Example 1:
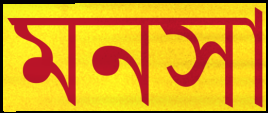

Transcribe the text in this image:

মনসা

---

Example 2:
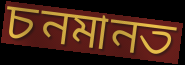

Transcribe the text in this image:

চনমানত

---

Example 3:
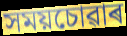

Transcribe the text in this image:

সময়চোৱাৰ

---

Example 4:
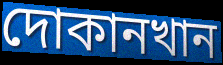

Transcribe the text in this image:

দোকানখান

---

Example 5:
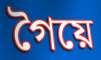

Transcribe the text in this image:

গৈয়ে